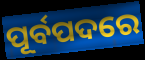
ପୂର୍ବପଦରେ